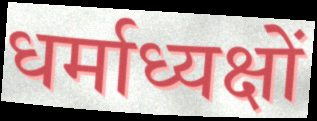
धर्माध्यक्षों